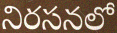
నిరసనలో